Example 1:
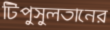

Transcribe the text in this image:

টিপুসুলতানের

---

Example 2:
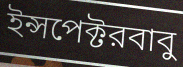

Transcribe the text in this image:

ইন্সপেক্টরবাবু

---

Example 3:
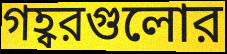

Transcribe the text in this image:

গহ্বরগুলোর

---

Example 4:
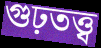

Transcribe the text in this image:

গুঢ়তত্ত্ব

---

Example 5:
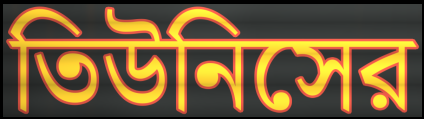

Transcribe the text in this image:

তিউনিসের